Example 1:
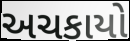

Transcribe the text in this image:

અચકાયો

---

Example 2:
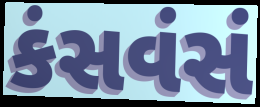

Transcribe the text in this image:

કંસવંસં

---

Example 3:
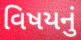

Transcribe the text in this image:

વિષયનું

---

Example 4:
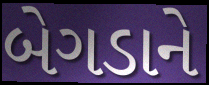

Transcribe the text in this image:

બેગડાને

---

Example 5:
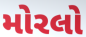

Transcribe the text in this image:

મોરલો